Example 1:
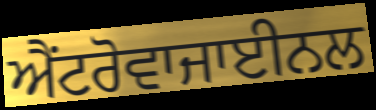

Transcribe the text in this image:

ਐਂਟਰੋਵਾਜਾਈਨਲ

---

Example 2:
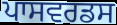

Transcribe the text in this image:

ਪਾਸਵਰਡਸ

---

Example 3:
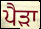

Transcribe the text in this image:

ਪੈੜਾ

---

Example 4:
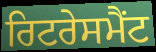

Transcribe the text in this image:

ਰਿਟਰੇਸਮੈਂਟ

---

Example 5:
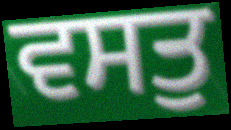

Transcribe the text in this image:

ਵਸਤੁ